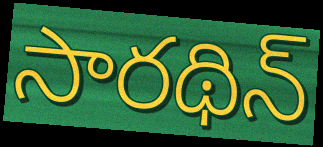
సారథిన్